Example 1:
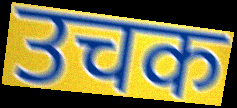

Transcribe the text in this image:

उचक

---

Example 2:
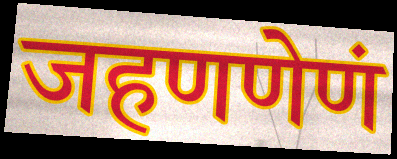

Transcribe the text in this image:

जहणणेणं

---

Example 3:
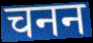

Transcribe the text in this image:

चनन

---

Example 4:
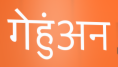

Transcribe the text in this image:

गेहुंअन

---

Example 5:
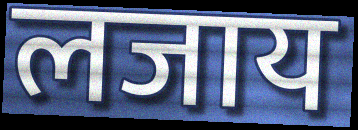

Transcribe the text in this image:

लजाय